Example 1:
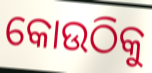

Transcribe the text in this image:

କୋଉଠିକୁ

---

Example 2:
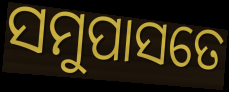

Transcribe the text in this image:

ସମୁପାସତେ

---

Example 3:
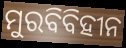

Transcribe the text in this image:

ମୁରବିବିହୀନ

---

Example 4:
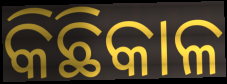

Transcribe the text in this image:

କିଛିକାଳ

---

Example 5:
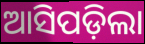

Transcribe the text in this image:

ଆସିପଡ଼ିଲା